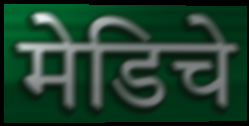
मेडिचे